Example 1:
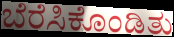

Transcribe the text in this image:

ಬೆರೆಸಿಕೊಂಡಿತು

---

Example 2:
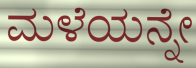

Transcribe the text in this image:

ಮಳೆಯನ್ನೇ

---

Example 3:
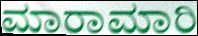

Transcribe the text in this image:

ಮಾರಾಮಾರಿ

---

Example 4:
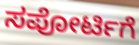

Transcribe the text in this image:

ಸಪೋರ್ಟಿಗೆ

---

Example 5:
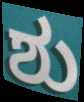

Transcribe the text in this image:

ಶು